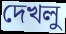
দেখলু